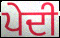
ਪੇਦੀ